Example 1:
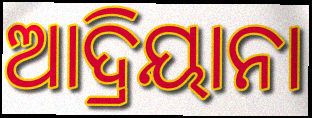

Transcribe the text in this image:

ଆଦ୍ରିୟାନା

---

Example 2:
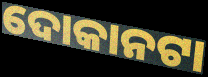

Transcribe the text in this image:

ଦୋକାନଟା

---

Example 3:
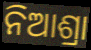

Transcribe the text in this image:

ନିଆଶ୍ରା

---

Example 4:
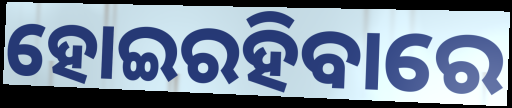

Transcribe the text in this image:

ହୋଇରହିବାରେ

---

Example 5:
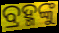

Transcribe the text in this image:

ବ୍ରହ୍ମଙ୍କୁ